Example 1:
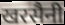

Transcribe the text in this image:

खरसैनी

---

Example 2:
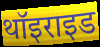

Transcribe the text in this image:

थॉइराइड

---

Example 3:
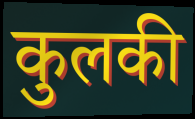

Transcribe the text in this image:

कुलकी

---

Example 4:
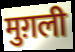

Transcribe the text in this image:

मुग़ली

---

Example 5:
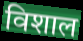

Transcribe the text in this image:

विशाल